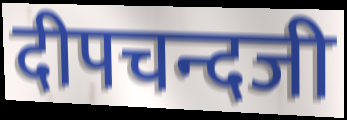
दीपचन्दजी